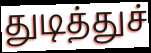
துடித்துச்